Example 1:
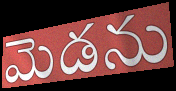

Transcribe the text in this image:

మెడను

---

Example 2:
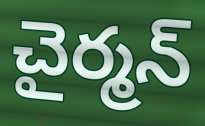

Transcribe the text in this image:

చైర్మన్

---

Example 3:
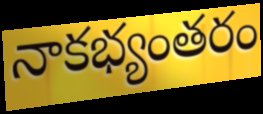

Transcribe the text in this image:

నాకభ్యంతరం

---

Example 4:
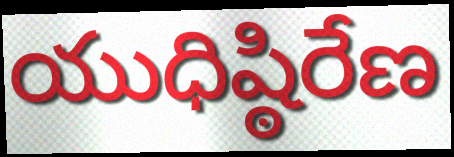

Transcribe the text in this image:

యుధిష్ఠిరేణ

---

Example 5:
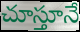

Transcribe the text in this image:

చూస్తూనే